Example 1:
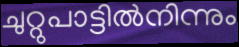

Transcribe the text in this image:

ചുറ്റുപാട്ടിൽനിന്നും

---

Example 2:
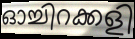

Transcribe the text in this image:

ഓച്ചിറക്കളി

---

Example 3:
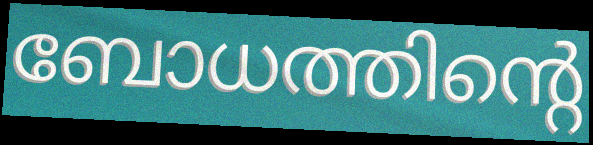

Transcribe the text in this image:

ബോധത്തിന്റെ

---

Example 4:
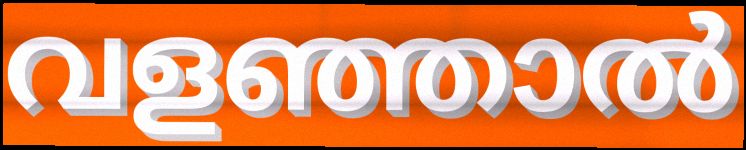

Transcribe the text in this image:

വളഞ്ഞാൽ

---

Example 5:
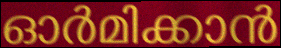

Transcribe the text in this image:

ഓർമിക്കാൻ